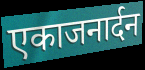
एकाजनार्दन